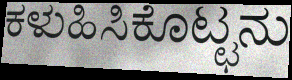
ಕಳುಹಿಸಿಕೊಟ್ಟನು